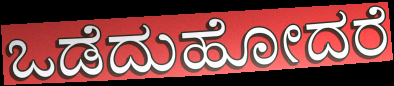
ಒಡೆದುಹೋದರೆ